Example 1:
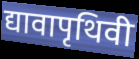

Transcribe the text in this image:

द्यावापृथिवी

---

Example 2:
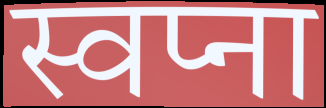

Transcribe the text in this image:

स्वप्ना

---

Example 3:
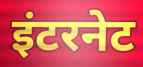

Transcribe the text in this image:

इंटरनेट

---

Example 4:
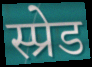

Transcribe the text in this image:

स्प्रेड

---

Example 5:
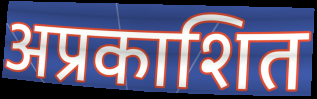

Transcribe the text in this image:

अप्रकाशित